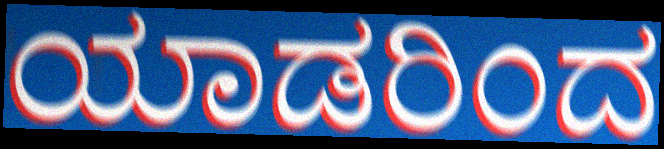
ಯಾಡರಿಂದ